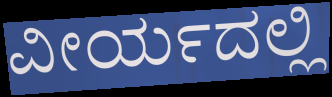
ವೀರ್ಯದಲ್ಲಿ